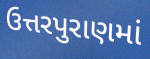
ઉત્તરપુરાણમાં